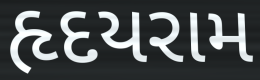
હૃદયરામ